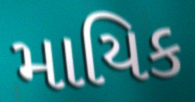
માયિક